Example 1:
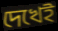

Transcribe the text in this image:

দেখেই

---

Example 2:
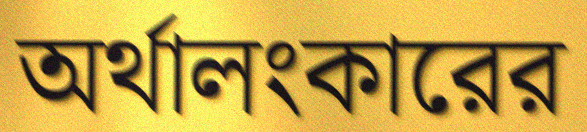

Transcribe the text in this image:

অর্থালংকারের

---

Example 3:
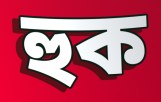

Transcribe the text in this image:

হুক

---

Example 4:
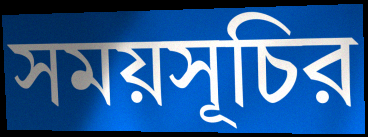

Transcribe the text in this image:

সময়সূচির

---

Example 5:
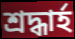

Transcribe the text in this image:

শ্রদ্ধার্হ